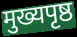
मुख्यपृष्ठ